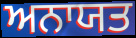
ਅਨਾਯਤ